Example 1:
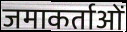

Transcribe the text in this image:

जमाकर्ताओं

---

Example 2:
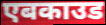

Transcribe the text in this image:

एबकाउड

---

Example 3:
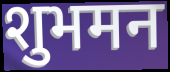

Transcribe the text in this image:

शुभमन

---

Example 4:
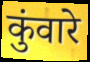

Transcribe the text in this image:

कुंवारे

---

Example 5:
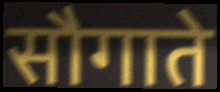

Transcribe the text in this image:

सौगाते